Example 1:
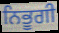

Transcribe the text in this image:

ਨਿਭੂਗੀ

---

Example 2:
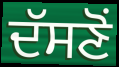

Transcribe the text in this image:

ਦੱਸਣੋਂ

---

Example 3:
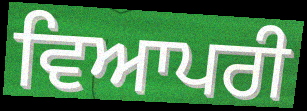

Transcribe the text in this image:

ਵਿਆਪਰੀ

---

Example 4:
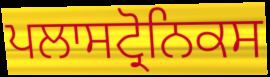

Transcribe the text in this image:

ਪਲਾਸਟ੍ਰੋਨਿਕਸ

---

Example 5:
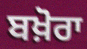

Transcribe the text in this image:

ਬਖ਼ੋਰਾ